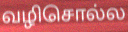
வழிசொல்ல